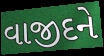
વાજીદને